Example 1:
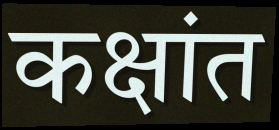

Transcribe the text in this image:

कक्षांत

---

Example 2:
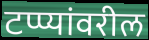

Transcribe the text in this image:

टप्प्यांवरील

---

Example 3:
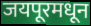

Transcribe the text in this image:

जयपूरमधून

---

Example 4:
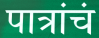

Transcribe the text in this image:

पात्रांचं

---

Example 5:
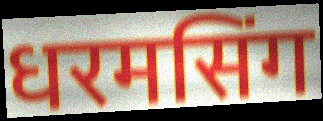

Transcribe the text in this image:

धरमसिंग